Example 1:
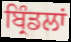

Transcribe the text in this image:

ਬ੍ਰਿੰਡਲਾਂ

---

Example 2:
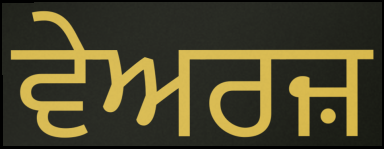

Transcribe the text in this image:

ਵੇਅਰਜ਼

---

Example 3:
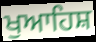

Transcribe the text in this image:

ਖੁਆਹਿਸ਼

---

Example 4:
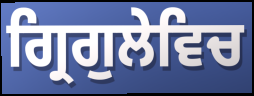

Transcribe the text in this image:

ਗ੍ਰਿਗੁਲੇਵਿਚ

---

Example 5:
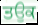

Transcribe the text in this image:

ਤਉਕ